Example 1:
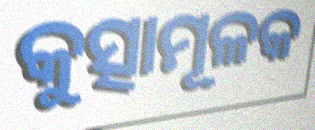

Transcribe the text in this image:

କୁତ୍ସାମୂଳକ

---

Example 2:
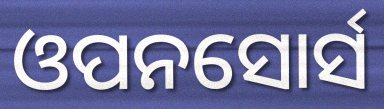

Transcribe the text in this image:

ଓପନସୋର୍ସ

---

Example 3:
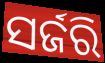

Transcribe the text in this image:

ସର୍ଜରି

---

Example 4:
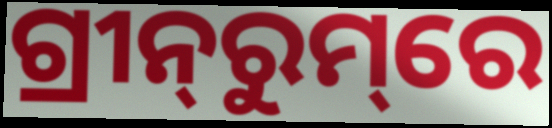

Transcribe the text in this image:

ଗ୍ରୀନ୍‌ରୁମ୍‌ରେ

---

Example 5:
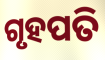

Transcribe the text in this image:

ଗୃହପତି